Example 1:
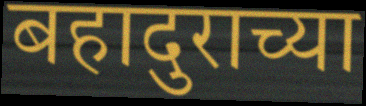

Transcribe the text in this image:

बहादुराच्या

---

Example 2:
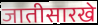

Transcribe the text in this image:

जातीसारखे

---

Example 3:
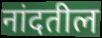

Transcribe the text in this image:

नांदतील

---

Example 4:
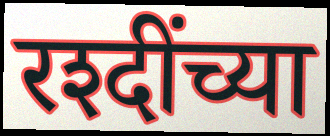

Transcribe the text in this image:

रश्दींच्या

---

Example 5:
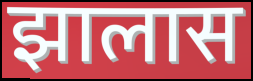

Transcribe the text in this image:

झालास